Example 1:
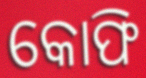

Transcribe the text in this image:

କୋଫି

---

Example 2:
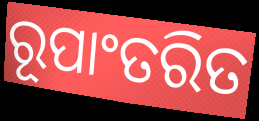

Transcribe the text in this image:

ରୂପାଂତରିତ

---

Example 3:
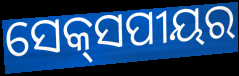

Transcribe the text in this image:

ସେକ୍‌ସପୀୟର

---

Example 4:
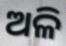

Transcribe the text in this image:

ଅଳି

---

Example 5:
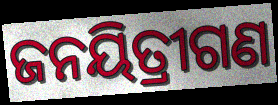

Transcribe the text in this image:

ଜନୟିତ୍ରୀଗଣ